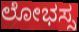
ಲೋಭಸ್ಸ